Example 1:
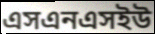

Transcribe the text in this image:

এসএনএসইউ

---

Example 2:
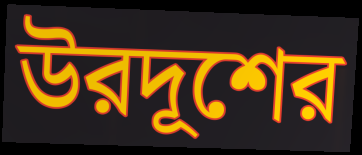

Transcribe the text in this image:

উরদূশের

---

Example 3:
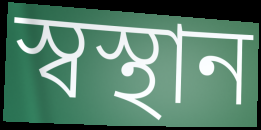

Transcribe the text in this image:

স্বস্থান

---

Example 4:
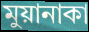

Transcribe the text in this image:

মুয়ানাকা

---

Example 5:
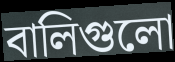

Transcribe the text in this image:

বালিগুলো